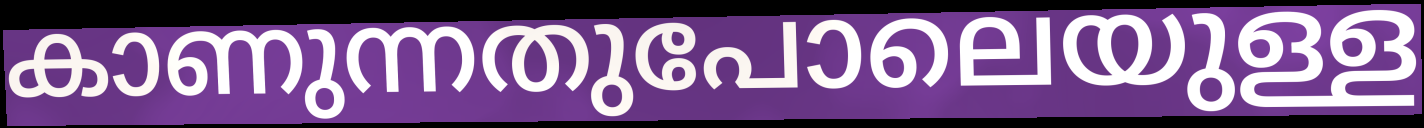
കാണുന്നതുപോലെയുള്ള